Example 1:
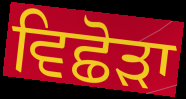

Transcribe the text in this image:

ਵਿਛੋੜਾ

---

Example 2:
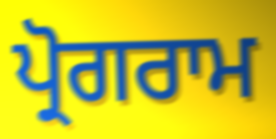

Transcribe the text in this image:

ਪ੍ਰੋਗਰਾਮ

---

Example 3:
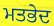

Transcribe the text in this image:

ਮਤਭੇਦ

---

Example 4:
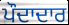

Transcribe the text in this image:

ਪੌਦਾਦਾਰ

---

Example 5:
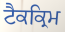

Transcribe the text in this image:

ਟੈਕਕ੍ਰਿਮ